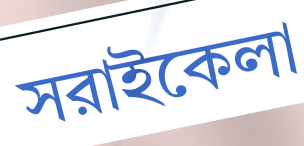
সরাইকেলা